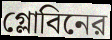
গ্লোবিনের